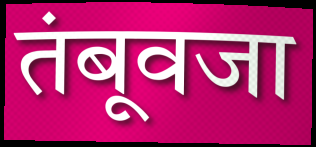
तंबूवजा